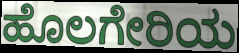
ಹೊಲಗೇರಿಯ